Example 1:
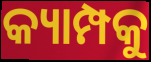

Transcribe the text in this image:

କ୍ୟାମ୍ପକୁ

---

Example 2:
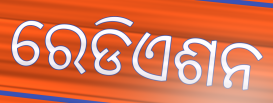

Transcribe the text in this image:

ରେଡିଏଶନ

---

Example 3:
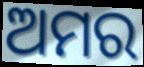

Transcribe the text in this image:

ଅମର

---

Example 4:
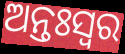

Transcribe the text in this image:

ଅନ୍ତଃସ୍ଵର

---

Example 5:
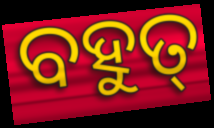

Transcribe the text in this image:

ବହୁତ୍